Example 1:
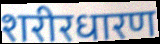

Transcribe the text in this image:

शरीरधारण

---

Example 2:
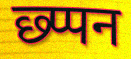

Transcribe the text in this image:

छ्प्पन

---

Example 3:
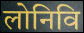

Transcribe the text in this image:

लोनिवि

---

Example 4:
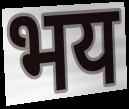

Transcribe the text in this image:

भय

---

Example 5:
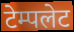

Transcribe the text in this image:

टेम्पलेट